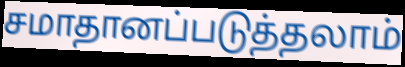
சமாதானப்படுத்தலாம்